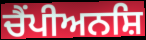
ਚੈਂਪੀਅਨਸ਼ਿ